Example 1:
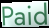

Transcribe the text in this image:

Paid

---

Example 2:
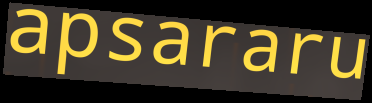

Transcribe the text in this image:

apsararu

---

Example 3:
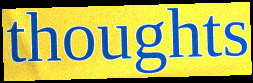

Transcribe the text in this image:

thoughts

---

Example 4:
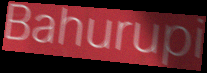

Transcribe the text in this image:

Bahurupi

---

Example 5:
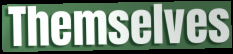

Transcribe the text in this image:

Themselves